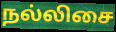
நல்லிசை